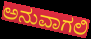
ಅನುವಾಗಲಿ